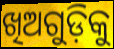
ଖିଅଗୁଡ଼ିକୁ